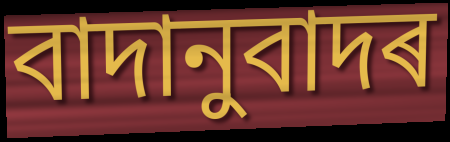
বাদানুবাদৰ